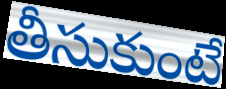
తీసుకుంటే